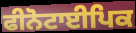
ਫੀਨੋਟਾਈਪਿਕ